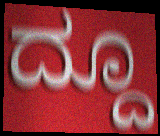
ದ್ದೂ